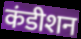
कंडीशन